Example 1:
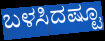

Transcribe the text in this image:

ಬಳಸಿದಷ್ಟೂ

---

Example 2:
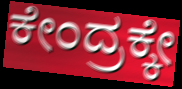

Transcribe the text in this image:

ಕೇಂದ್ರಕ್ಕೇ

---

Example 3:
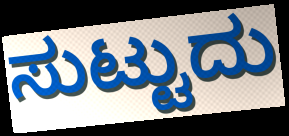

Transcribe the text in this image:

ಸುಟ್ಟುದು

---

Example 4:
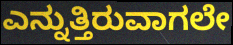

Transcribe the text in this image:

ಎನ್ನುತ್ತಿರುವಾಗಲೇ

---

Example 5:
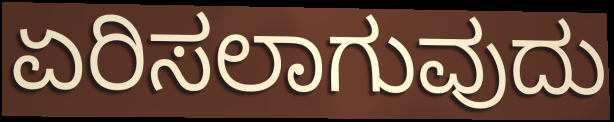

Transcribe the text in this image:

ಏರಿಸಲಾಗುವುದು